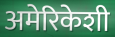
अमेरिकेशी